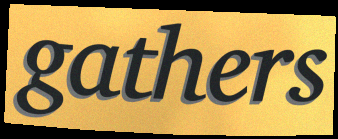
gathers